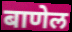
बाणेल